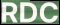
RDC